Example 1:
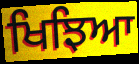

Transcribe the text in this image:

ਖਿਝਿਆ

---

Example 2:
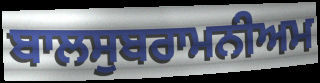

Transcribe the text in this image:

ਬਾਲਸੁਬਰਾਮਨੀਅਮ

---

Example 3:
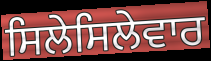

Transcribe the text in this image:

ਸਿਲੇਸਿਲੇਵਾਰ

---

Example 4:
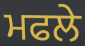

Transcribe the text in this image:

ਮਫਲੇ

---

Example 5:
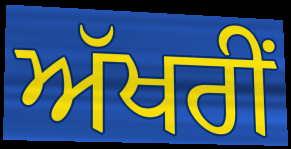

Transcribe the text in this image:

ਅੱਖਰੀਂ